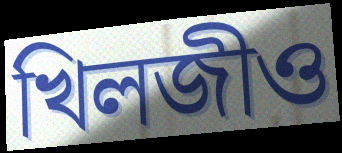
খিলজীও